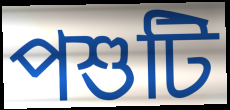
পশুটি